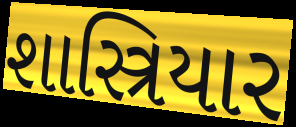
શાસ્ત્રિયાર